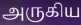
அருகிய